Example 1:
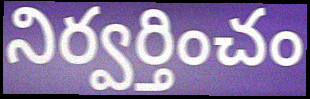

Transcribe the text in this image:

నిర్వర్తించం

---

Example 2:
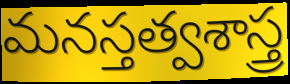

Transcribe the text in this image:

మనస్తత్వశాస్త్ర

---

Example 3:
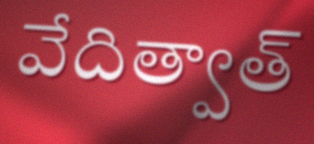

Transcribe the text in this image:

వేదిత్వాత్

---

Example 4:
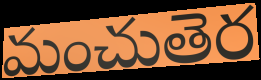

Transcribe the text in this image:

మంచుతెర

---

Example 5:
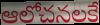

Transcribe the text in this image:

ఆలోచనలకే